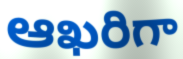
ఆఖరిగా